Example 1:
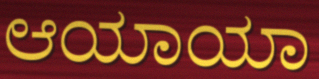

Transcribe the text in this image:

ಆಯಾಯಾ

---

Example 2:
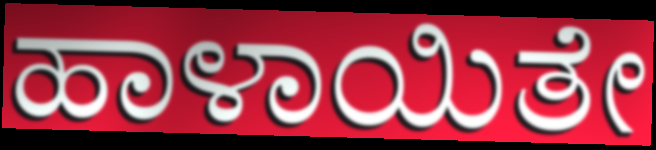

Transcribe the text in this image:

ಹಾಳಾಯಿತೇ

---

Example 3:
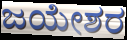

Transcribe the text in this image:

ಜಯೇಶರ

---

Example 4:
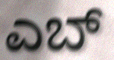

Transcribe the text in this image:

ಎಬ್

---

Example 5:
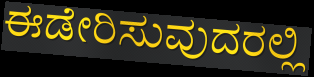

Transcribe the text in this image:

ಈಡೇರಿಸುವುದರಲ್ಲಿ